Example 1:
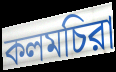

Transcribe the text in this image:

কলমচিরা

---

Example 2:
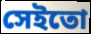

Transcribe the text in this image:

সেইতো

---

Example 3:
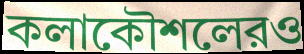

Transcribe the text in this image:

কলাকৌশলেরও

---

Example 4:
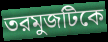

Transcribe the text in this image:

তরমুজটিকে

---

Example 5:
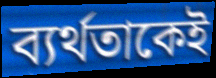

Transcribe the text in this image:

ব্যর্থতাকেই